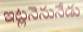
ఇట్లనెనునేడు